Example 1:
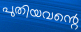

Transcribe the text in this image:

പുതിയവന്റെ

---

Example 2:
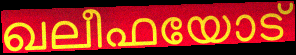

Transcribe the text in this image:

ഖലീഫയോട്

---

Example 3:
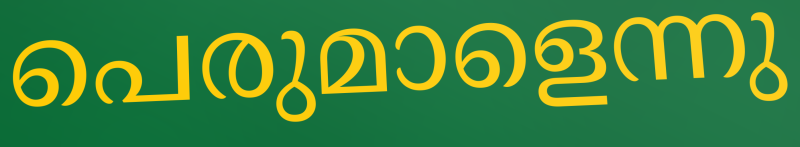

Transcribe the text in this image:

പെരുമാളെന്നു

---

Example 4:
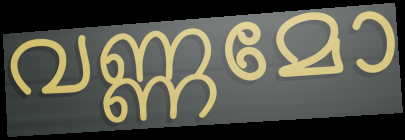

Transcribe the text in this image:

വണ്ണമോ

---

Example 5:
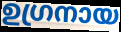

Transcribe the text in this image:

ഉഗ്രനായ